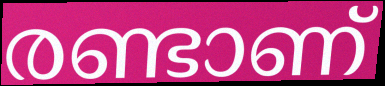
രണ്ടാണ്